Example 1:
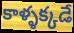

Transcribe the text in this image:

కాళ్ళక్కడే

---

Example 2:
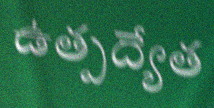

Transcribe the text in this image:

ఉత్పద్యేత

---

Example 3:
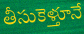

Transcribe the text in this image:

తీసుకెళ్తూనే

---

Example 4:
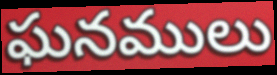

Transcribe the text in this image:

ఘనములు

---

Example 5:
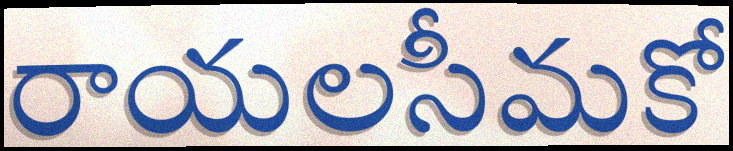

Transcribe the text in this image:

రాయలసీమకో